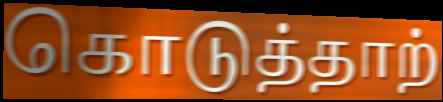
கொடுத்தாற்